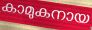
കാമുകനായ